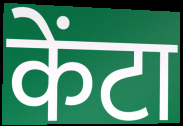
केंटा